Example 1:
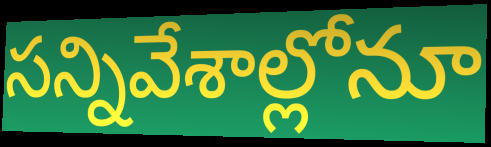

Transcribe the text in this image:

సన్నివేశాల్లోనూ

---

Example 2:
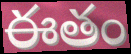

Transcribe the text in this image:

ఈతం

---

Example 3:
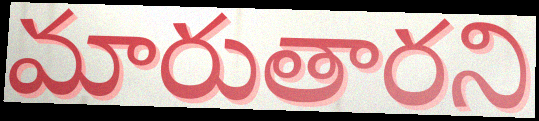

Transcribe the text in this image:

మారుతారని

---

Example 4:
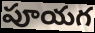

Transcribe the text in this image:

పూయగ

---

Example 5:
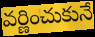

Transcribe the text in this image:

వర్ణించుకునే